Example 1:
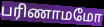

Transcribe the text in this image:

பரிணாமமோ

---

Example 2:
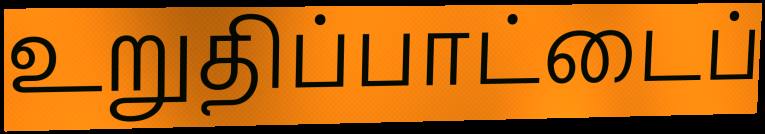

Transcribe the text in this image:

உறுதிப்பாட்டைப்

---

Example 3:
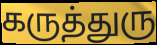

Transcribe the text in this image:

கருத்துரு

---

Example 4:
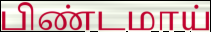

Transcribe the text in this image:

பிண்டமாய்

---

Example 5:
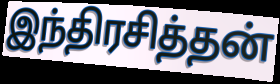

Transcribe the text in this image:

இந்திரசித்தன்